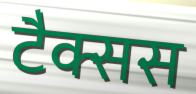
टैक्सस